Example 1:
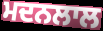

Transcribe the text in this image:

ਮਦਨਲਾਲ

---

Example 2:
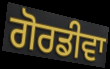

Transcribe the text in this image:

ਗੋਰਡੀਵਾ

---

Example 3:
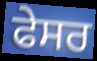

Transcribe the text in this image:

ਫੇਸਰ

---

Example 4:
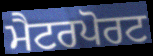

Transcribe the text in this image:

ਮੈਟਰਪੋਰਟ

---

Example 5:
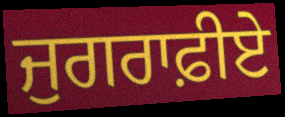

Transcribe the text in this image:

ਜੁਗਰਾਫ਼ੀਏ